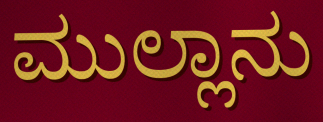
ಮುಲ್ಲಾನು